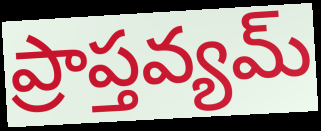
ప్రాప్తవ్యమ్